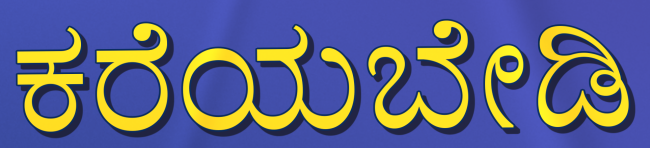
ಕರೆಯಬೇಡಿ